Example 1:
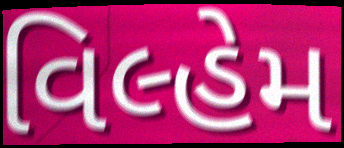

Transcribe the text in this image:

વિલ્હેમ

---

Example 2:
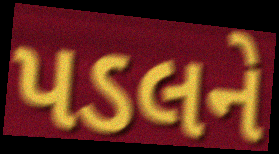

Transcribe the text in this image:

પડલને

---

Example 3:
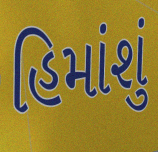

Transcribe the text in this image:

હિમાંશું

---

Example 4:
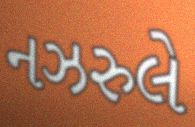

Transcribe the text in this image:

નઝરુલે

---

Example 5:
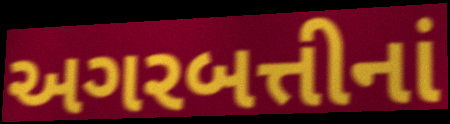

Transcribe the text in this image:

અગરબત્તીનાં